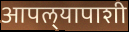
आपल्यापाशी